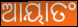
ଆୟାତଂ